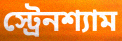
স্ট্রেনশ্যাম